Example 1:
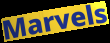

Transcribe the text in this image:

Marvels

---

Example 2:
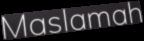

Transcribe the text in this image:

Maslamah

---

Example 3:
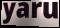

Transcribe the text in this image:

yaru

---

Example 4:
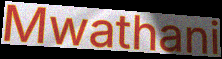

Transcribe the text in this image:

Mwathani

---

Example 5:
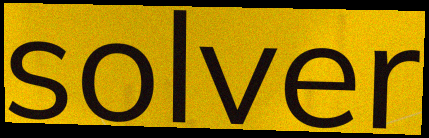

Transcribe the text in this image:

solver